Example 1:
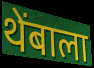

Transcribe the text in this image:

थेंबाला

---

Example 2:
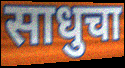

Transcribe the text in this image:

साधुचा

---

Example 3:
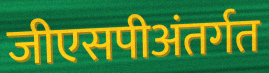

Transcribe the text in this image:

जीएसपीअंतर्गत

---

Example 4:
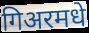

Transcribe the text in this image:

गिअरमधे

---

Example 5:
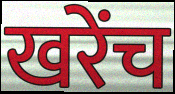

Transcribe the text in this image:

खरेंच